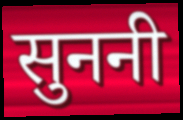
सुननी